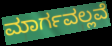
ಮಾರ್ಗವಲ್ಲವೆ